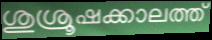
ശുശ്രൂഷക്കാലത്ത്